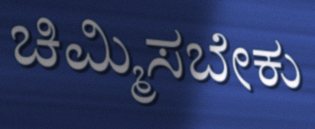
ಚಿಮ್ಮಿಸಬೇಕು